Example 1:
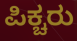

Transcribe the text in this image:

ಪಿಕ್ಚರು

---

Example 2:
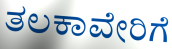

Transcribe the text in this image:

ತಲಕಾವೇರಿಗೆ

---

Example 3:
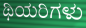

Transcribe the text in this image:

ಥಿಯರಿಗಳು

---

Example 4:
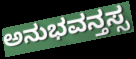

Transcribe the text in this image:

ಅನುಭವನ್ತಸ್ಸ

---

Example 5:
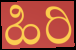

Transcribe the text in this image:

ಹಿರಿ